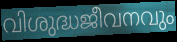
വിശുദ്ധജീവനവും